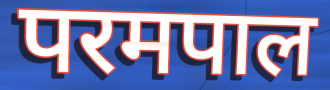
परमपाल